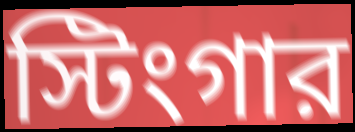
স্টিংগার